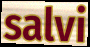
salvi